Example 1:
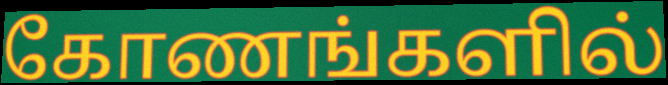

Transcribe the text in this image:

கோணங்களில்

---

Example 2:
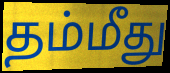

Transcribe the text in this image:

தம்மீது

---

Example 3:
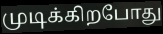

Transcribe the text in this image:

முடிக்கிறபோது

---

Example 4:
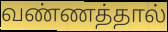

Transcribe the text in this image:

வண்ணத்தால்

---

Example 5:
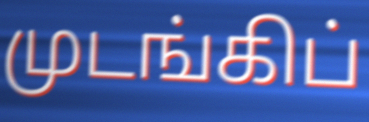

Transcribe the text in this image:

முடங்கிப்